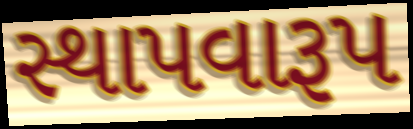
સ્થાપવારૂપ